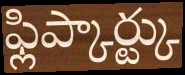
ఫ్లిప్కార్ట్కు